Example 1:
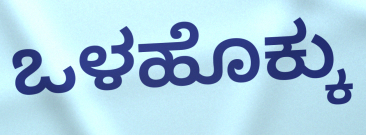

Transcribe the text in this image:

ಒಳಹೊಕ್ಕು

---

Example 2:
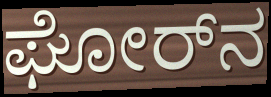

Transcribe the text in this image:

ಘೋರ್‌ನ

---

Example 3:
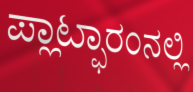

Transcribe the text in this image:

ಪ್ಲಾಟ್ಫಾರಂನಲ್ಲಿ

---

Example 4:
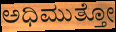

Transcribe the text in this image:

ಅಧಿಮುತ್ತೋ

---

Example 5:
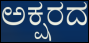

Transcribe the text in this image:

ಅಕ್ಷರದ